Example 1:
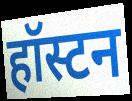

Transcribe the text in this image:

हॉस्टन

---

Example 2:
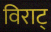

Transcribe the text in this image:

विराट्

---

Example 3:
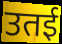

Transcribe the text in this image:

उतई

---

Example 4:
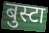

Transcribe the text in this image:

बुस्टा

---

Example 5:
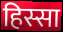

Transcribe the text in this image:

हिस्सा